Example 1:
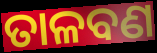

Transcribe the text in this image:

ତାଳବଣ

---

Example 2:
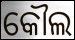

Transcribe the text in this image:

କୌଲ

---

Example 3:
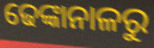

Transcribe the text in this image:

ଢେଙ୍କାନାଳରୁ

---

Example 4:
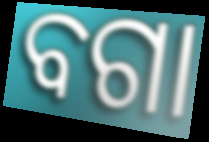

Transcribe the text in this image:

ବଗା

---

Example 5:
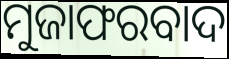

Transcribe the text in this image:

ମୁଜାଫରବାଦ